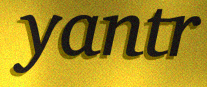
yantr